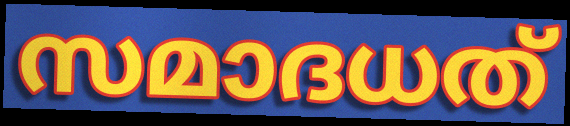
സമാദധത്